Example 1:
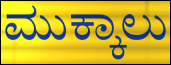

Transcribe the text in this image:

ಮುಕ್ಕಾಲು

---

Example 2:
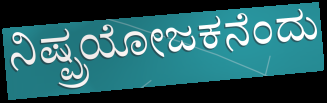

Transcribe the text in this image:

ನಿಷ್ಪ್ರಯೋಜಕನೆಂದು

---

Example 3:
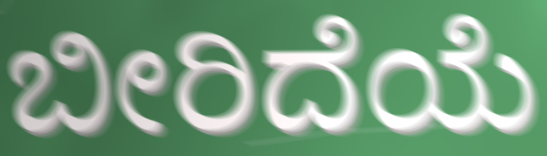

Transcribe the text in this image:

ಬೀರಿದೆಯೆ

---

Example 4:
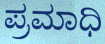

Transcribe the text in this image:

ಪ್ರಮಾಧಿ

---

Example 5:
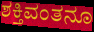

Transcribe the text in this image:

ಶಕ್ತಿವಂತನೂ